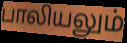
பாலியலும்